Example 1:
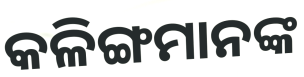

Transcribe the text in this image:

କଳିଙ୍ଗମାନଙ୍କ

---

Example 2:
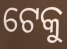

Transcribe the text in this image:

ଟେକୁ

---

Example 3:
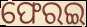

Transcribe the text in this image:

ଫେରଇ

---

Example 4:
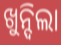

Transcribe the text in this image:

ଖୁନ୍ଦିଲା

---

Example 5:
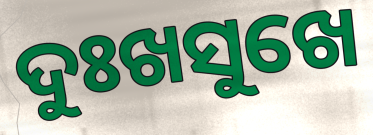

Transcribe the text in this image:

ଦୁଃଖସୁଖେ